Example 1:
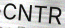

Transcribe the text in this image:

CNTR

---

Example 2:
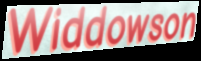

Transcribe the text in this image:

Widdowson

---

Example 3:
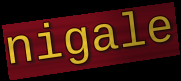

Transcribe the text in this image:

nigale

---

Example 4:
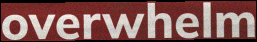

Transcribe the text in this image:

overwhelm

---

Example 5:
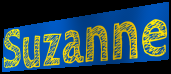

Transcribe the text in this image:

Suzanne